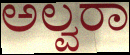
ಅಲ್ವರಾ